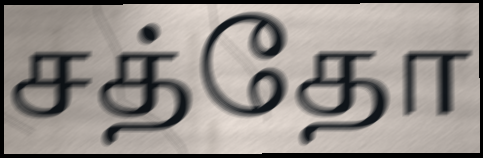
சத்தோ